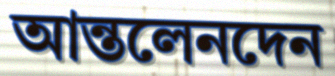
আন্তলেনদেন